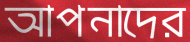
আপনাদের